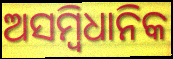
ଅସମ୍ବିଧାନିକ